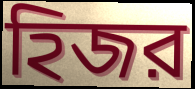
হিজর